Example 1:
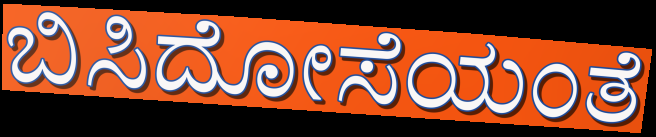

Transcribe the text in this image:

ಬಿಸಿದೋಸೆಯಂತೆ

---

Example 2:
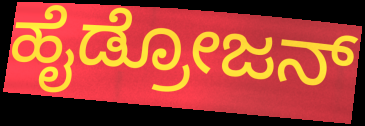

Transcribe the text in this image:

ಹೈಡ್ರೋಜನ್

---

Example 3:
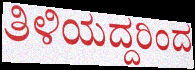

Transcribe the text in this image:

ತಿಳಿಯದ್ದರಿಂದ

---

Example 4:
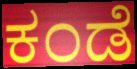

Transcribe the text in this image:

ಕಂಡೆ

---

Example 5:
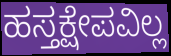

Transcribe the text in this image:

ಹಸ್ತಕ್ಷೇಪವಿಲ್ಲ